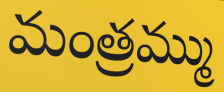
మంత్రమ్ము